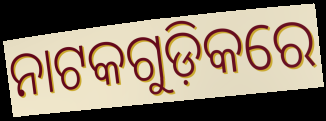
ନାଟକଗୁଡ଼ିକରେ